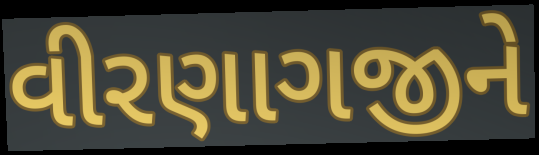
વીરણાગજીને